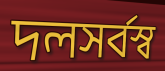
দলসর্বস্ব